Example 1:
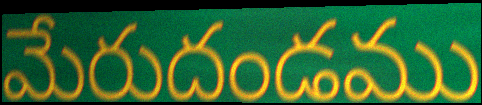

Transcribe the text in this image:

మేరుదండము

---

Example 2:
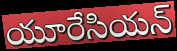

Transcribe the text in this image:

యూరేసియన్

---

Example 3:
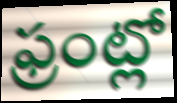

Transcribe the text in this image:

ఫ్రంట్లో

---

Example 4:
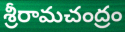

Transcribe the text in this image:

శ్రీరామచంద్రం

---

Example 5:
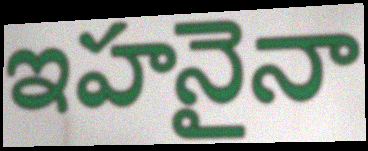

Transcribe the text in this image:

ఇహనైనా